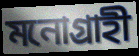
মনোগ্ৰাহী